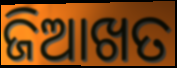
ଜିଆଖତ